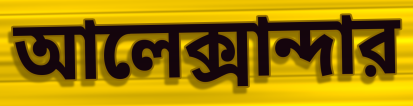
আলেক্সান্দার